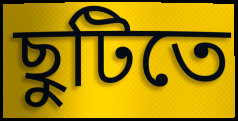
ছুটিতে